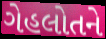
ગેહલોતને